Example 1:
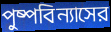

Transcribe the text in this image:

পুষ্পবিন্যাসের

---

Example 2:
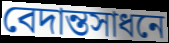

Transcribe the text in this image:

বেদান্তসাধনে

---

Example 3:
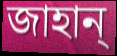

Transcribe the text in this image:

জাহান্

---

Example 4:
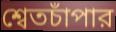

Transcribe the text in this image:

শ্বেতচাঁপার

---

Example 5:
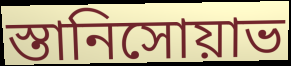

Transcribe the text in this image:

স্তানিসোয়াভ